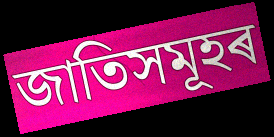
জাতিসমূহৰ